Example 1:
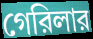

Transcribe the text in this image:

গেরিলার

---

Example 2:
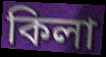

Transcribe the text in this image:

কিলা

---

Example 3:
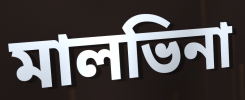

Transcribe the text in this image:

মালভিনা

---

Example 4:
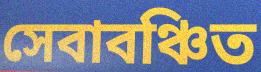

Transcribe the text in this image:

সেবাবঞ্চিত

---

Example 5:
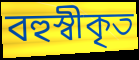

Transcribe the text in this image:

বহুস্বীকৃত